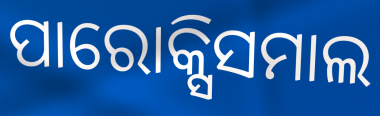
ପାରୋକ୍ସିସମାଲ